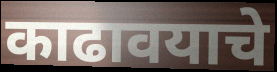
काढावयाचे